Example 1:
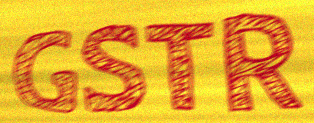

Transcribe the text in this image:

GSTR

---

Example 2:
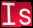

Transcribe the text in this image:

Is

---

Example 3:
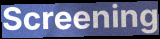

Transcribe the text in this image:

Screening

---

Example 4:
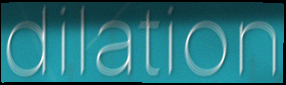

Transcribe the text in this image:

dilation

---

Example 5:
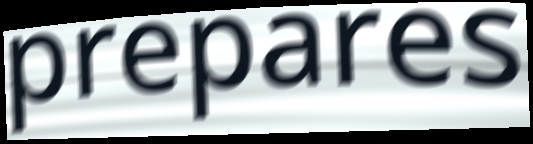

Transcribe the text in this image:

prepares